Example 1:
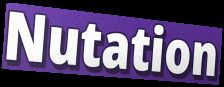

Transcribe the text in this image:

Nutation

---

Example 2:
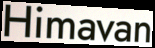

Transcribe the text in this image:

Himavan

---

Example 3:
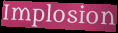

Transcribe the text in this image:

Implosion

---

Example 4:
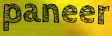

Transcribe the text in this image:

paneer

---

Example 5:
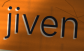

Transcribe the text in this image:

jiven